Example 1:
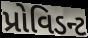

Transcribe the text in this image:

પ્રોવિડન્ટ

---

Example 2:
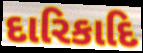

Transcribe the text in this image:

દારિકાદિ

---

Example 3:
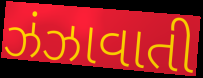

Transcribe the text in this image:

ઝંઝાવાતી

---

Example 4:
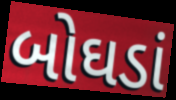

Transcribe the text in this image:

બોઘડાં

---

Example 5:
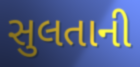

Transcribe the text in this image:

સુલતાની